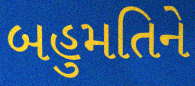
બહુમતિને